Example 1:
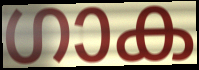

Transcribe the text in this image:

ഗാക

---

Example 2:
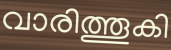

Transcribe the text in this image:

വാരിത്തൂകി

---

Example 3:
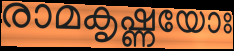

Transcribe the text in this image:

രാമകൃഷ്ണയോഃ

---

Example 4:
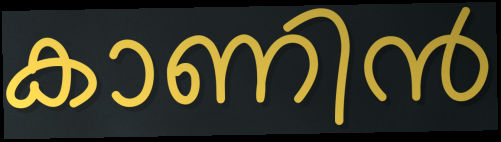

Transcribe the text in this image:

കാണിൻ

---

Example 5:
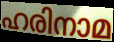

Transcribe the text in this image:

ഹരിനാമ